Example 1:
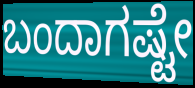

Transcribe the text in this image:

ಬಂದಾಗಷ್ಟೇ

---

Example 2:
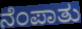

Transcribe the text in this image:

ನೆಂಪಾತು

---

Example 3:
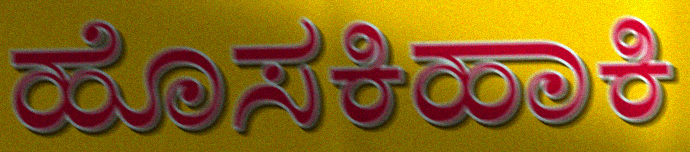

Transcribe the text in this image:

ಹೊಸಕಿಹಾಕಿ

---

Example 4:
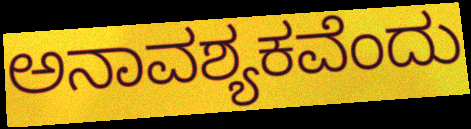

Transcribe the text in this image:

ಅನಾವಶ್ಯಕವೆಂದು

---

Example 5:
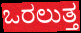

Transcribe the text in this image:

ಒರಲುತ್ತ